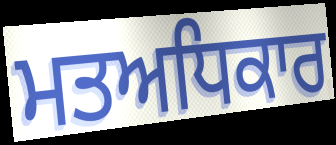
ਮਤਅਧਿਕਾਰ